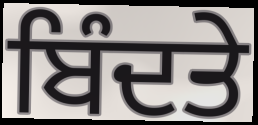
ਬਿੰਦਤੇ